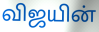
விஜயின்